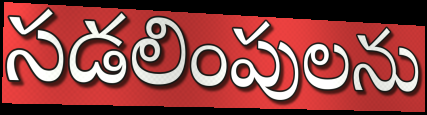
సడలింపులను